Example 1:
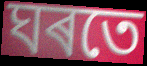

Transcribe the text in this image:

ঘৰতে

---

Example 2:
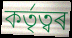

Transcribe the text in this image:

কৰ্তৃত্বৰ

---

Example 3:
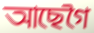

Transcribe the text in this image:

আছেগৈ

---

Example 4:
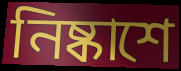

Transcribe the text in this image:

নিষ্কাশে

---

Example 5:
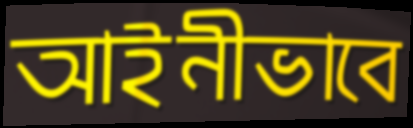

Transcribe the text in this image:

আইনীভাবে